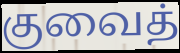
குவைத்